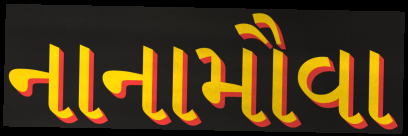
નાનામૌવા